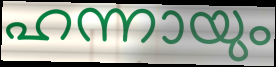
ഹന്നായും